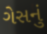
ગેસનું